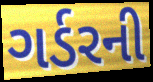
ગર્ડરની